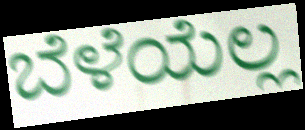
ಬೆಳೆಯೆಲ್ಲ